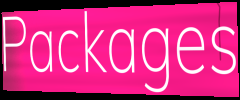
Packages